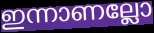
ഇന്നാണല്ലോ